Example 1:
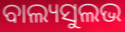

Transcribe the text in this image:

ବାଲ୍ୟସୁଲଭ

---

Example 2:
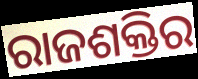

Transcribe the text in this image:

ରାଜଶକ୍ତିର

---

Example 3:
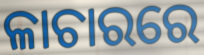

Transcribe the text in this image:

ଳାଚାରରେ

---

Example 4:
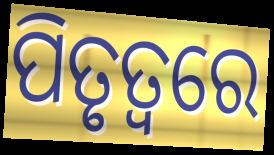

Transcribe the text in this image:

ପିତୃତ୍ୱରେ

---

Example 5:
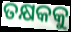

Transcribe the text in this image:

ତକ୍ଷକକୁ